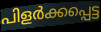
പിളർക്കപ്പെട്ട